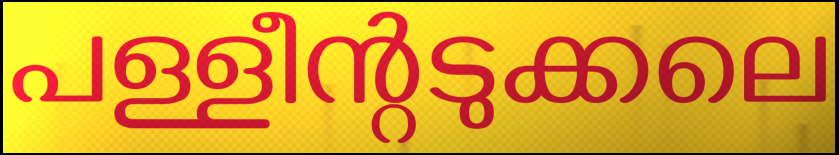
പള്ളീന്റടുക്കലെ